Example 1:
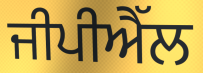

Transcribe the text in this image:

ਜੀਪੀਐੱਲ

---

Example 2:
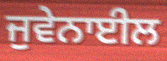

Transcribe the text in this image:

ਜੁਵੇਨਾਈਲ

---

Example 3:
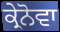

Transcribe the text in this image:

ਕ੍ਰੇਨੋਵਾ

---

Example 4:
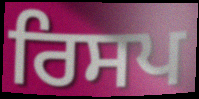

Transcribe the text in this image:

ਰਿਸਪ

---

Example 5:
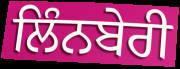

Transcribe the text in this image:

ਲਿੰਨਬੇਰੀ